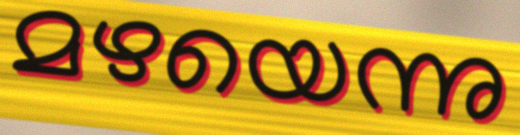
മഴയെന്നു